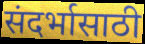
संदर्भासाठी